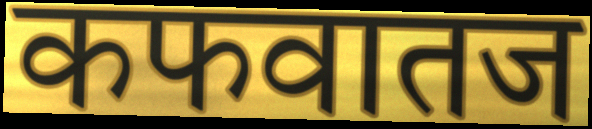
कफवातज